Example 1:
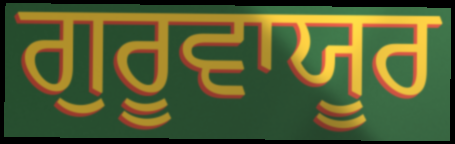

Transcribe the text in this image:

ਗੁਰੂਵਾਯੂਰ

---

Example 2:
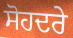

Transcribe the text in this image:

ਸੋਹਦਰੇ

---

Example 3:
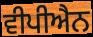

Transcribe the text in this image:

ਵੀਪੀਐਨ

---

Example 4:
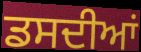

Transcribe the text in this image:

ਡਸਦੀਆਂ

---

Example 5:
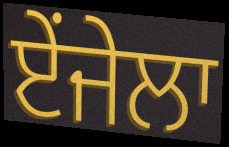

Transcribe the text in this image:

ਏਂਜੇਲਾ